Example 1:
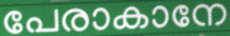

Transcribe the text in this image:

പേരാകാനേ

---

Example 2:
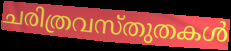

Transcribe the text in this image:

ചരിത്രവസ്തുതകൾ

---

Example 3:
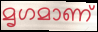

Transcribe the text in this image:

മൃഗമാണ്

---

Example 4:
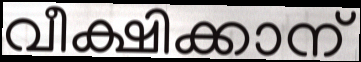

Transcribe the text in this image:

വീക്ഷിക്കാന്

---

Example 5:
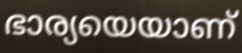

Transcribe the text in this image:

ഭാര്യയെയാണ്